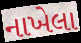
નાખેલા